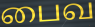
பைவ